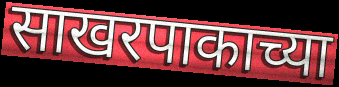
साखरपाकाच्या